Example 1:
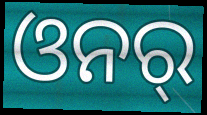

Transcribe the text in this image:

ଓନର୍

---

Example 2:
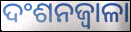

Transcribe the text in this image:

ଦଂଶନଜ୍ୱାଳା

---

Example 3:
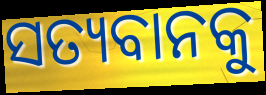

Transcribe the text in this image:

ସତ୍ୟବାନକୁ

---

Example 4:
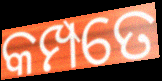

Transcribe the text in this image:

କମ୍ପତେ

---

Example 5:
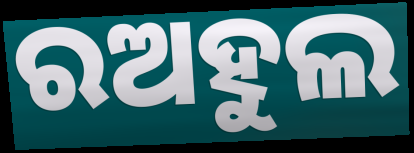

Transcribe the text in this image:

ରଅହୁଲ